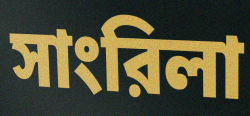
সাংরিলা